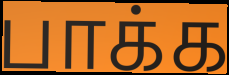
பாக்க